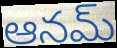
ఆనమ్